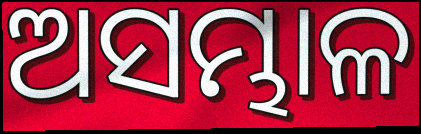
ଅସମ୍ଭାଳ